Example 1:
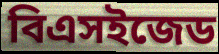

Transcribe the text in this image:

বিএসইজেড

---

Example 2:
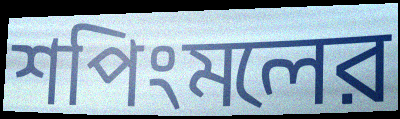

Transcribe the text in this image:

শপিংমলের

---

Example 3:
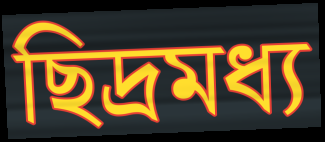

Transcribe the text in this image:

ছিদ্রমধ্য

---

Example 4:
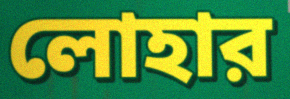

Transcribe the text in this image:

লোহার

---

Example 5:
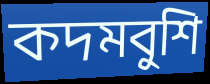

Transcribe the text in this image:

কদমবুশি